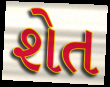
શેત